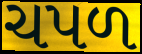
ચપળ